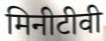
मिनीटीवी